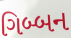
ગિબ્બન